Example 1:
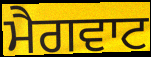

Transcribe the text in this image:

ਮੈਗਵਾਟ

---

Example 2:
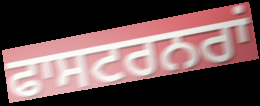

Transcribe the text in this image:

ਫਾਸਟਰਨਰਾਂ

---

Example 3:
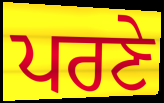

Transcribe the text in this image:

ਪਰਣੇ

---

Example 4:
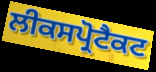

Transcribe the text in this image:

ਲੀਕਸਪ੍ਰੋਟੈਕਟ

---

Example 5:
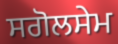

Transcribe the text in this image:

ਸਗੋਲਸੇਮ